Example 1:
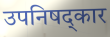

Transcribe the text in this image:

उपनिषद्कार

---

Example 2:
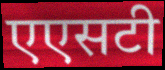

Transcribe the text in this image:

एएसटी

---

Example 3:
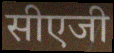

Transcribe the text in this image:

सीएजी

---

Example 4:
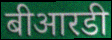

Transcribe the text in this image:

बीआरडी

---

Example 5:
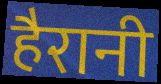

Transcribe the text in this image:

हैरानी